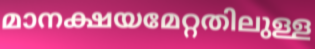
മാനക്ഷയമേറ്റതിലുള്ള